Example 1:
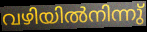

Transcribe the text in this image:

വഴിയിൽനിന്നു്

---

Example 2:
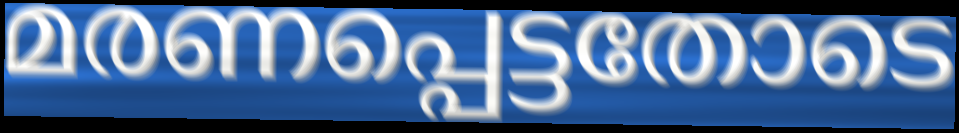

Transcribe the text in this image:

മരണപ്പെട്ടതോടെ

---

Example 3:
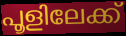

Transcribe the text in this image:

പൂളിലേക്ക്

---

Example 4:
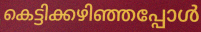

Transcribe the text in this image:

കെട്ടിക്കഴിഞ്ഞപ്പോൾ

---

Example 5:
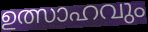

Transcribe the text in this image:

ഉത്സാഹവും